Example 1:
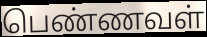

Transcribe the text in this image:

பெண்ணவள்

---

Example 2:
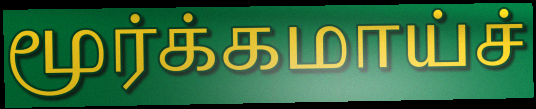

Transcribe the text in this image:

மூர்க்கமாய்ச்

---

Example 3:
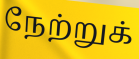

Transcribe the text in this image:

நேற்றுக்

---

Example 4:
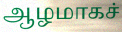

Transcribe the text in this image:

ஆழமாகச்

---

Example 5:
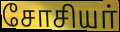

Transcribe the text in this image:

சோசியர்